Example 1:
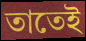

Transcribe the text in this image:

তাতেই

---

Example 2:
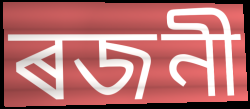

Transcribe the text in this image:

ৰজনী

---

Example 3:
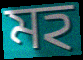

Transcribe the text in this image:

মহ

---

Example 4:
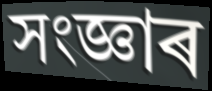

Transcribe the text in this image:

সংজ্ঞাৰ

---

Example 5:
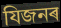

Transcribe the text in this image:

যিজনৰ